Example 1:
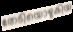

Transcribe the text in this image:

തേടിയൊഴുകിയ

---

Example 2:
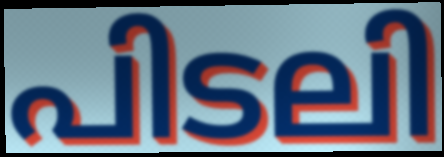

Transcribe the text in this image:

പിടലി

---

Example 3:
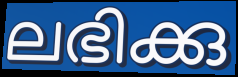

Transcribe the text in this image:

ലഭിക്കു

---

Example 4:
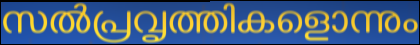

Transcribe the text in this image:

സൽപ്രവൃത്തികളൊന്നും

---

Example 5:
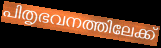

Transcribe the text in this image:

പിതൃഭവനത്തിലേക്ക്